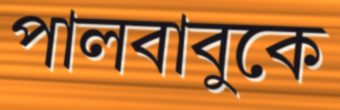
পালবাবুকে